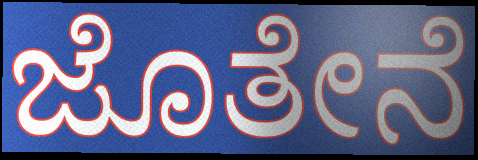
ಜೊತೇನೆ